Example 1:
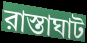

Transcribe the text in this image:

রাস্তাঘাট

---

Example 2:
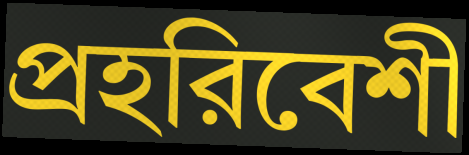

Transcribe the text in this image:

প্রহরিবেশী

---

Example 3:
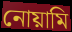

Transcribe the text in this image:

নোয়ামি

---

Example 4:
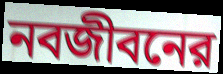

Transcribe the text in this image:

নবজীবনের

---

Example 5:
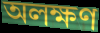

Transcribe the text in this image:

অলক্ষণ